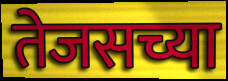
तेजसच्या